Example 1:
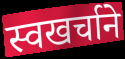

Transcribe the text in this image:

स्वखर्चाने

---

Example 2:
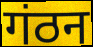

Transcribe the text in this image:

गंठन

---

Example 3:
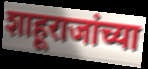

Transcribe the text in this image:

शाहूराजांच्या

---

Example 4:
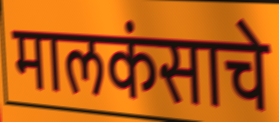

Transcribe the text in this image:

मालकंसाचे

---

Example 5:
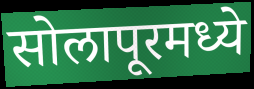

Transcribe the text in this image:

सोलापूरमध्ये